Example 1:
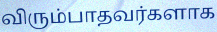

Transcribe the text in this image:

விரும்பாதவர்களாக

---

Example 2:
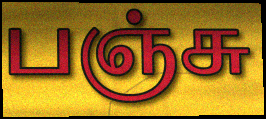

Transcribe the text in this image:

பஞ்சு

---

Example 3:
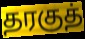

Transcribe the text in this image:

தரகுத்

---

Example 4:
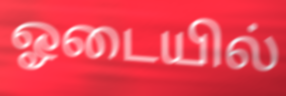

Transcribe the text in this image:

ஓடையில்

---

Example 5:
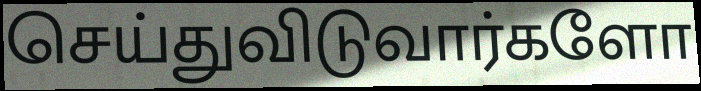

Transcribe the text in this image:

செய்துவிடுவார்களோ